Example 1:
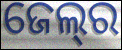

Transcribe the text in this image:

ଜେଲ୍‍ର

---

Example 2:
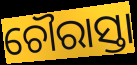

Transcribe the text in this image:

ଚୌରାସ୍ତା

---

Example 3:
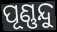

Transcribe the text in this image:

ପୂଣ୍ଣନ୍ଦୁ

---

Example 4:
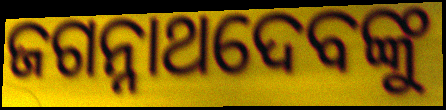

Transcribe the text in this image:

ଜଗନ୍ନାଥଦେବଙ୍କୁ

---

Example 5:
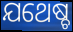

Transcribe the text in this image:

ଯଥେଷ୍ଚ